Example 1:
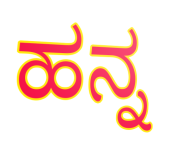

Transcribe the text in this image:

ಹನ್ನ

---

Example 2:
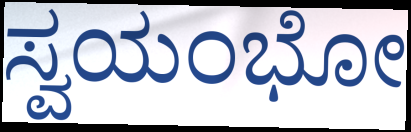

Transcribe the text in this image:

ಸ್ವಯಂಭೋ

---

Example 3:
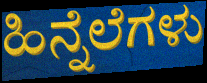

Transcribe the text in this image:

ಹಿನ್ನೆಲೆಗಳು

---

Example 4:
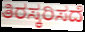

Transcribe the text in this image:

ತಿರಸ್ಕರಿಸದೆ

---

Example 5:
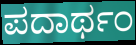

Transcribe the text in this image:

ಪದಾರ್ಥಂ